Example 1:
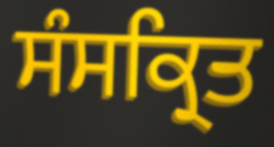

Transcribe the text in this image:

ਸੰਸਕ੍ਰਿਤ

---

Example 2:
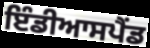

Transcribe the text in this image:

ਇੰਡੀਆਸਪੈਂਡ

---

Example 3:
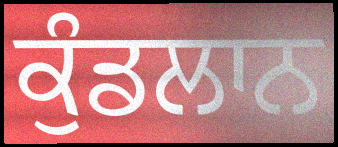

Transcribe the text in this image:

ਕੁੰਡਲਾਨ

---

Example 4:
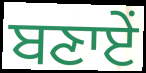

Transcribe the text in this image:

ਬਣਾਏਂ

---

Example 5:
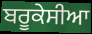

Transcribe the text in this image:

ਬਰੂਕੇਸੀਆ